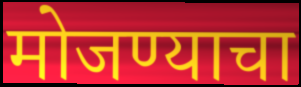
मोजण्याचा